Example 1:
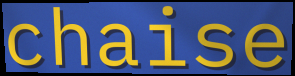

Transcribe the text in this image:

chaise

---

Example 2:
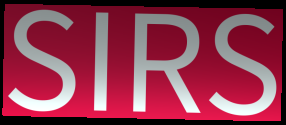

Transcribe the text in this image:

SIRS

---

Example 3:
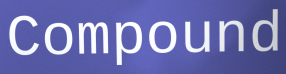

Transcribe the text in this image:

Compound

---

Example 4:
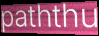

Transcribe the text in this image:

paththu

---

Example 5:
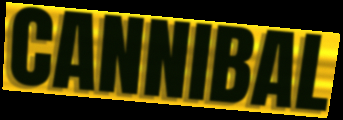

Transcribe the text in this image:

CANNIBAL